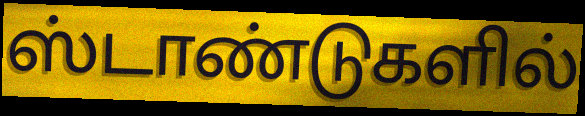
ஸ்டாண்டுகளில்